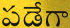
పడేగా